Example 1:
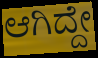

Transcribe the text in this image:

ಆಗಿದ್ದೇ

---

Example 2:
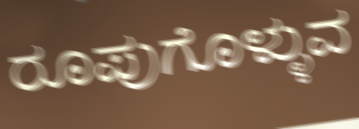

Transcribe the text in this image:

ರೂಪುಗೊಳ್ಳುವ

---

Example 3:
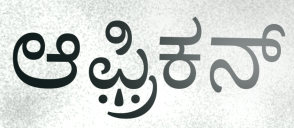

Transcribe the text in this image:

ಆಫ಼್ರಿಕನ್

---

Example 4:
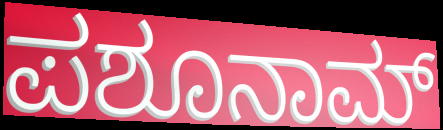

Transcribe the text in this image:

ಪಶೂನಾಮ್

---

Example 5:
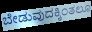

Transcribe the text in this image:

ಬೇಡುವುದಕ್ಕಿಂತಲೂ